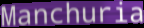
Manchuria